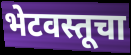
भेटवस्तूचा